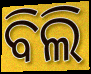
ବିଲି